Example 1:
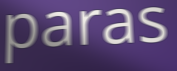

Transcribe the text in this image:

paras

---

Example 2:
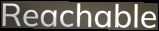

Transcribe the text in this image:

Reachable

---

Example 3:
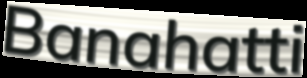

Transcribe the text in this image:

Banahatti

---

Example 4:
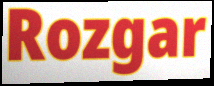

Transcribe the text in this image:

Rozgar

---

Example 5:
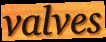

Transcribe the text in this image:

valves